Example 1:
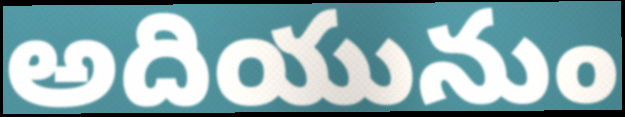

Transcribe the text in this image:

అదియునుం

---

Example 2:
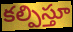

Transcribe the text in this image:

కల్పిస్తూ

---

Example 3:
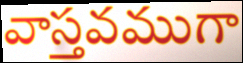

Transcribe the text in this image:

వాస్తవముగా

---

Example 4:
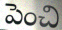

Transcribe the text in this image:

పెంచి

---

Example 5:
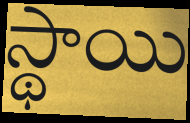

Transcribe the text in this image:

స్థాయి